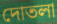
দোতলা